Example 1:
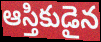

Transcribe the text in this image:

ఆస్తికుడైన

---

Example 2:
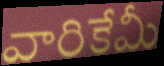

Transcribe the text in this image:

వారికేమీ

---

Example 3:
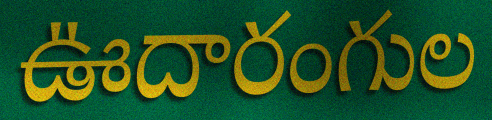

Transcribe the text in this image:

ఊదారంగుల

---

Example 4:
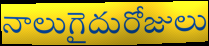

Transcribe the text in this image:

నాలుగైదురోజులు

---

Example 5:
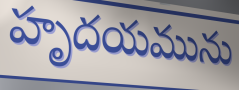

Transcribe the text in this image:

హృదయమును